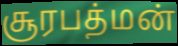
சூரபத்மன்